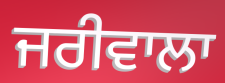
ਜਰੀਵਾਲਾ